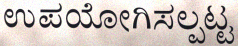
ಉಪಯೋಗಿಸಲ್ಪಟ್ಟ